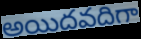
అయిదవదిగా